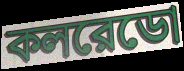
কলরেডো